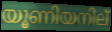
യൂണിയനില്